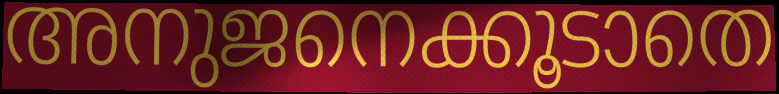
അനുജനെക്കൂടാതെ